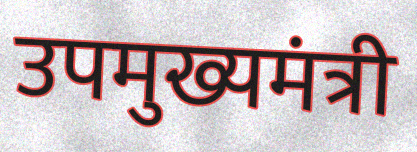
उपमुख्यमंत्री